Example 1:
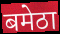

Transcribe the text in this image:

बमेठा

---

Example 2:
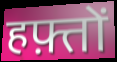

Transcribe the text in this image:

हफ़्तों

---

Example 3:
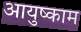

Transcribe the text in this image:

आयुष्काम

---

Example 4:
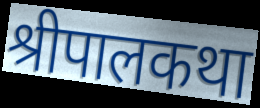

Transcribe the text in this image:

श्रीपालकथा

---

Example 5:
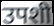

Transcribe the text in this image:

उपशी